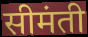
सीमंती